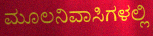
ಮೂಲನಿವಾಸಿಗಳಲ್ಲಿ